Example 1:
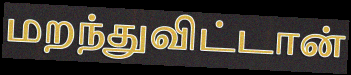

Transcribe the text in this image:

மறந்துவிட்டான்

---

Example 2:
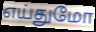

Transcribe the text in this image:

எய்துமோ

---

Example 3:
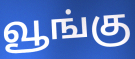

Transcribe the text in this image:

வூங்கு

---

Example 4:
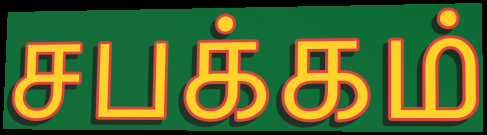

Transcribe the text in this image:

சபக்கம்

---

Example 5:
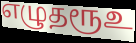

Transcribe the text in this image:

எழுதரூஉ